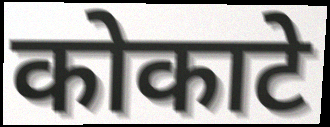
कोकाटे